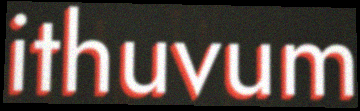
ithuvum